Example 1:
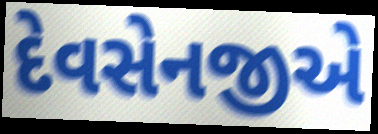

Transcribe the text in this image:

દેવસેનજીએ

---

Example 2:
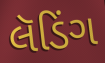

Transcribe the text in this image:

લૅડિંગ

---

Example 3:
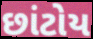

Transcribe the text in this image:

છાંટોય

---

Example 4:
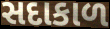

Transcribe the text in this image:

સદાકાળ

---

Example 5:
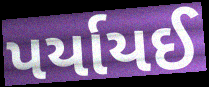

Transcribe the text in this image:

પર્યાયઈ